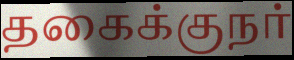
தகைக்குநர்